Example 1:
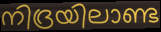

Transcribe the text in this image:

നിദ്രയിലാണ്ട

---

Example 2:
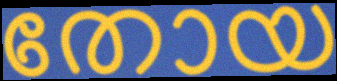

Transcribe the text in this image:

തോയ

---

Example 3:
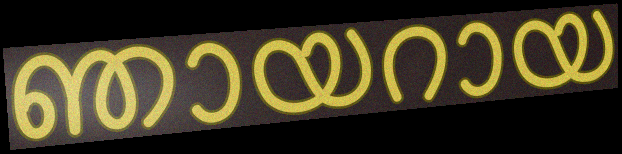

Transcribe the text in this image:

ഞായറായ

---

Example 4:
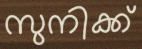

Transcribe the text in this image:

സുനിക്ക്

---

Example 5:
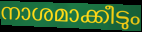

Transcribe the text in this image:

നാശമാക്കീടും